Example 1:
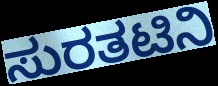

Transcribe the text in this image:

ಸುರತಟಿನಿ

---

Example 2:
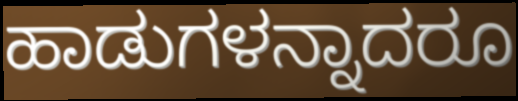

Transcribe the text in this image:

ಹಾಡುಗಳನ್ನಾದರೂ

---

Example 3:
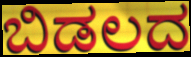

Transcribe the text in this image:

ಬಿಡಲದ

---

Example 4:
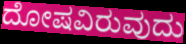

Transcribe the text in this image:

ದೋಷವಿರುವುದು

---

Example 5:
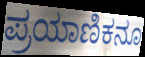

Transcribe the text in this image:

ಪ್ರಯಾಣಿಕನೂ